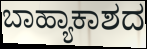
ಬಾಹ್ಯಾಕಾಶದ